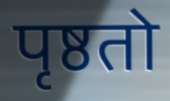
पृष्ठतो